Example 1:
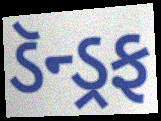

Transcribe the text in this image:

ડૅન્ડ્રફ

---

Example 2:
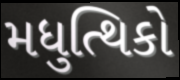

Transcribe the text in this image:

મધુત્થિકો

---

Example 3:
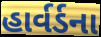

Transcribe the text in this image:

હાર્વર્ડના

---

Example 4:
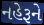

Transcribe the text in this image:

નહેરૂને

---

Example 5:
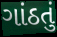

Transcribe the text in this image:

ગાંઠતું